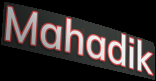
Mahadik